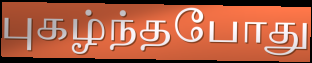
புகழ்ந்தபோது